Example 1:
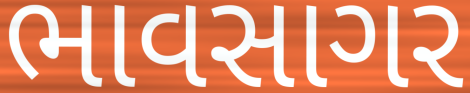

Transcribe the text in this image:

ભાવસાગર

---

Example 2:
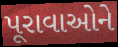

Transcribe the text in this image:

પૂરાવાઓને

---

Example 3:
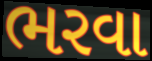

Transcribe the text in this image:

ભરવા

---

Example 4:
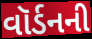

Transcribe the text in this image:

વૉર્ડનની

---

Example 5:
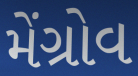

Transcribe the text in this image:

મેંગ્રોવ